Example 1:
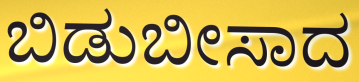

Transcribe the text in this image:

ಬಿಡುಬೀಸಾದ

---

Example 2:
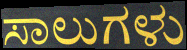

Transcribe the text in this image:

ಸಾಲುಗಳು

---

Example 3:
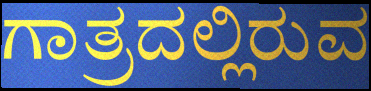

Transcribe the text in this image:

ಗಾತ್ರದಲ್ಲಿರುವ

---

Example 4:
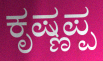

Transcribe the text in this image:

ಕೃಷ್ಣಪ್ಪ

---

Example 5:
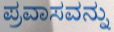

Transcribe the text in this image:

ಪ್ರವಾಸವನ್ನು